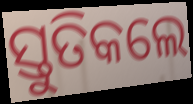
ସ୍ତୁତିକଲେ